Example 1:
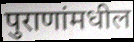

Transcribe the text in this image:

पुराणांमधील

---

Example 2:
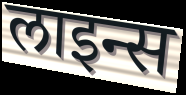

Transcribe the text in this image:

लाइन्स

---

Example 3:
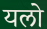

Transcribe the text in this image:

यलो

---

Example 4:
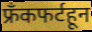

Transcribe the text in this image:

फ्रँकफर्टहून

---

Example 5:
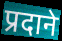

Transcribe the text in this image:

प्रदाने